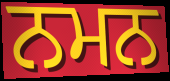
ਨਮਨ